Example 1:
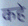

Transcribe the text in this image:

कहे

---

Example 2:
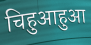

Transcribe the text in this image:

चिहुआहुआ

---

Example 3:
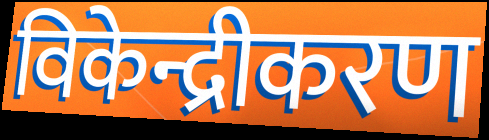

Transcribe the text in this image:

विकेन्द्रीकरण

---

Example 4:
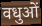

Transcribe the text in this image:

वधुओं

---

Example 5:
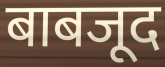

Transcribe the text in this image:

बाबजूद